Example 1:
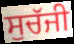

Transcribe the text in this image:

ਸੁਚੱਜੀ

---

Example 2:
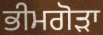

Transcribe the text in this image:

ਭੀਮਗੋੜਾ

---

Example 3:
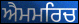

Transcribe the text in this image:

ਐਮਮਰਿਚ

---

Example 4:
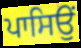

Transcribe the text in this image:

ਪਾਸਿਉਂ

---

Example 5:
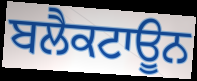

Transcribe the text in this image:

ਬਲੈਕਟਾਊਨ